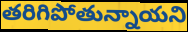
తరిగిపోతున్నాయని